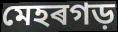
মেহৰগড়